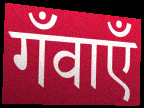
गँवाएँ